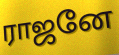
ராஜனே